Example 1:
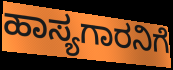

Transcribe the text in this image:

ಹಾಸ್ಯಗಾರನಿಗೆ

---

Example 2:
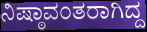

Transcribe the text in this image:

ನಿಷ್ಠಾವಂತರಾಗಿದ್ದ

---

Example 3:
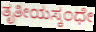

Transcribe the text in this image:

ತೃತೀಯಸ್ಕಂಧೇ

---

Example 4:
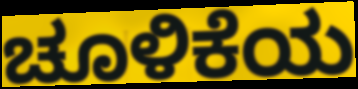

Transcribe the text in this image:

ಚೂಳಿಕೆಯ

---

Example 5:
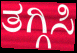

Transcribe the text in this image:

ತಗ್ಗಿಸಿ